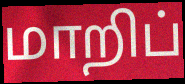
மாறிப்